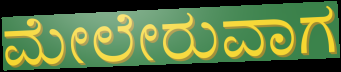
ಮೇಲೇರುವಾಗ